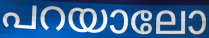
പറയാലോ